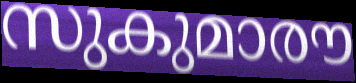
സുകുമാരൗ